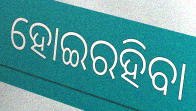
ହୋଇରହିବା